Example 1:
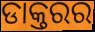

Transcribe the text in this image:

ଡାକ୍ତରର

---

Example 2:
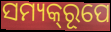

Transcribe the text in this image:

ସମ୍ୟକ୍‌ରୂପେ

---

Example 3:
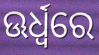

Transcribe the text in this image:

ଊର୍ଧ୍ୱରେ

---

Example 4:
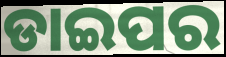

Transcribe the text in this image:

ଡାଇପର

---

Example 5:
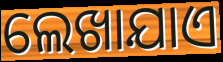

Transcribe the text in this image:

ଲେଖାଯାଏ